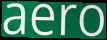
aero